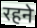
रहने